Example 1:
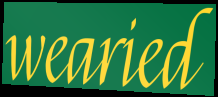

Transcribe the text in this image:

wearied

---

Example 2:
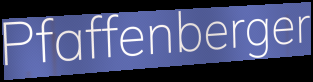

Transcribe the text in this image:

Pfaffenberger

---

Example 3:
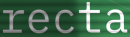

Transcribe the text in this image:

recta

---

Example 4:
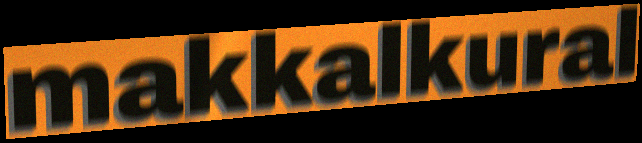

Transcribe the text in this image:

makkalkural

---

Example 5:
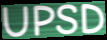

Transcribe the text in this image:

UPSD